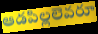
ఆడపిల్లలెవరూ